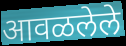
आवळलेले